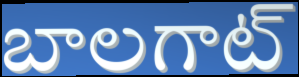
బాలగాట్